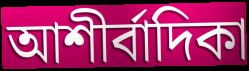
আশীর্বাদিকা